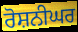
ਰੋਸ਼ਨੀਘਰ